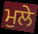
ਮੁਲੇ